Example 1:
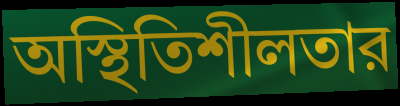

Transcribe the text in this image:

অস্থিতিশীলতার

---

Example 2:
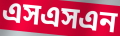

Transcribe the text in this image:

এসএসএন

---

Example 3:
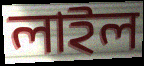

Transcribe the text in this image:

লাইল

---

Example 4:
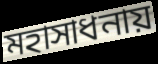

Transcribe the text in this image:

মহাসাধনায়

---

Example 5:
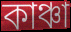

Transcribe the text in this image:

কাঞ্চা